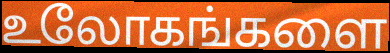
உலோகங்களை